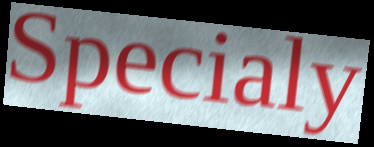
Specialy